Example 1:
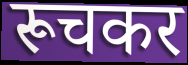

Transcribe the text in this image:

रूचकर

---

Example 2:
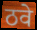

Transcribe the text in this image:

ठवे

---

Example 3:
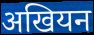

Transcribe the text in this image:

अखियन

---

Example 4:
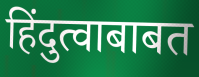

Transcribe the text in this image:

हिंदुत्वाबाबत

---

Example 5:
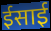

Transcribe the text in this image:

ईसाई